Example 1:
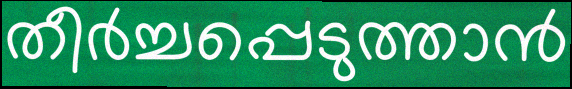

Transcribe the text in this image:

തീർച്ചപ്പെടുത്താൻ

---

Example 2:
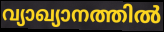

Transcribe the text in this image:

വ്യാഖ്യാനത്തിൽ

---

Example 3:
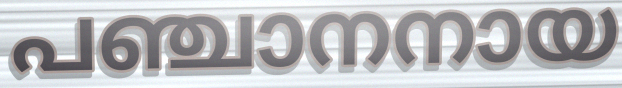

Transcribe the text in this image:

പഞ്ചാനനായ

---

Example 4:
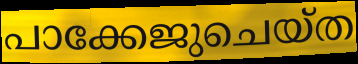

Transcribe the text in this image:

പാക്കേജുചെയ്ത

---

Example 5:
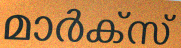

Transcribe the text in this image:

മാർക്‌സ്